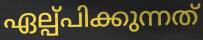
ഏല്പ്പിക്കുന്നത്